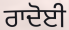
ਰਾਦੋਈ